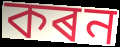
কৰন